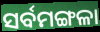
ସର୍ବମଙ୍ଗଳା